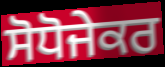
ਸੋਧੋਜੇਕਰ